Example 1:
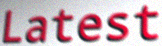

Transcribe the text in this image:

Latest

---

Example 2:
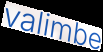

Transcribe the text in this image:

valimbe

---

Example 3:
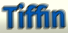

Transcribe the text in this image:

Tiffin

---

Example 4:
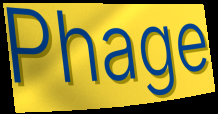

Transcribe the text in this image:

Phage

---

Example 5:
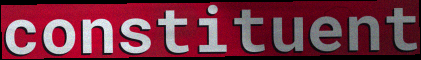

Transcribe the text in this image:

constituent